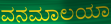
ವನಮಾಲಯಾ